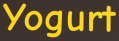
Yogurt